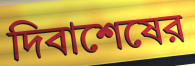
দিবাশেষের